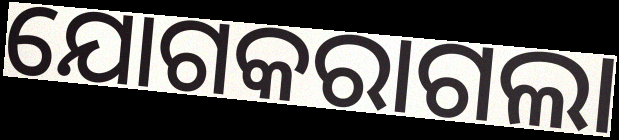
ଯୋଗକରାଗଲା